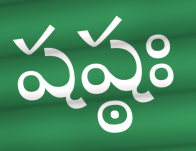
షష్ఠః